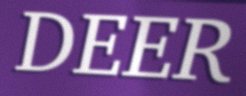
DEER